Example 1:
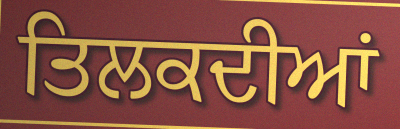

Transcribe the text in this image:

ਤਿਲਕਦੀਆਂ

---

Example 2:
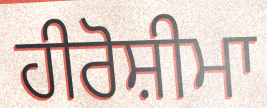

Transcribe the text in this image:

ਹੀਰੋਸ਼ੀਮਾ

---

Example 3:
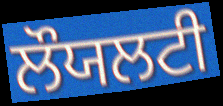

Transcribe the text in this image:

ਲੌਯਲਟੀ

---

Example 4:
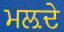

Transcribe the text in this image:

ਮਲ਼ਦੇ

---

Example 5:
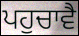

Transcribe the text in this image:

ਪਹੁਚਾਵੈ